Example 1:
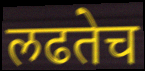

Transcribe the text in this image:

लढतेच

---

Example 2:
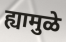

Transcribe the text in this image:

ह्यामुळे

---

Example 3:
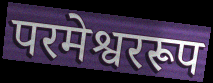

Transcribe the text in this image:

परमेश्वररूप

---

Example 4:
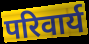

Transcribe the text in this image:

परिवार्य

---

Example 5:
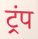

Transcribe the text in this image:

ट्रंप